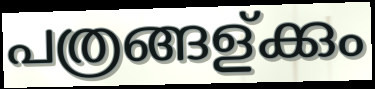
പത്രങ്ങള്ക്കും